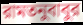
রামতনুবাবুর